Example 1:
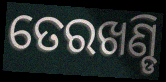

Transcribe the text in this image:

ତେରଖଣ୍ଡି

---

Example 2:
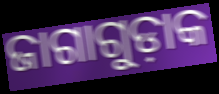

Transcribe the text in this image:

ଜାଗାଗୁଡ଼ାକ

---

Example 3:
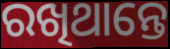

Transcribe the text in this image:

ରଖିଥାନ୍ତେ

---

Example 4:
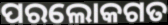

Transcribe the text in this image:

ପରଲୋକଗତ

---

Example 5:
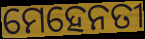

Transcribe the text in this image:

ମେହେନତୀ